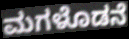
ಮಗಳೊಡನೆ